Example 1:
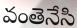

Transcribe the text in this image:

వంతెనేసి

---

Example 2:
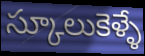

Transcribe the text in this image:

స్కూలుకెళ్ళే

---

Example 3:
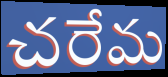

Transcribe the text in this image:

చరేమ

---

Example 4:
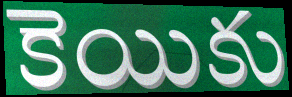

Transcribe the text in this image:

కెయికు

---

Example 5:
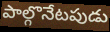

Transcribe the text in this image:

పాల్గొనేటపుడు